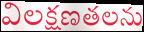
విలక్షణతలను